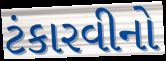
ટંકારવીનો